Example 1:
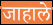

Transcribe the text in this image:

जाहाले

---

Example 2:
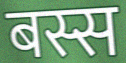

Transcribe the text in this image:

बस्स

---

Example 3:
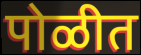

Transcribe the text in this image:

पोळीत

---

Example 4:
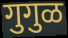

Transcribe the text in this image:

गुगुळ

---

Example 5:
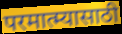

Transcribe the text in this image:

परमात्म्यासाठी